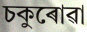
চকুৰোৱা